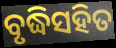
ବୃଦ୍ଧିସହିତ